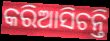
କରିଆସିଚନ୍ତି